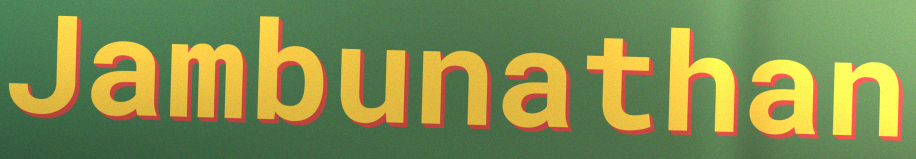
Jambunathan